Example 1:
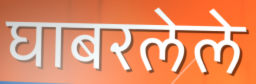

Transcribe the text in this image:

घाबरलेले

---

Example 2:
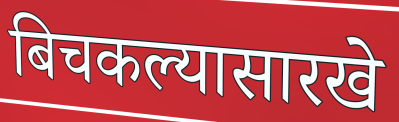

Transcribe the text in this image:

बिचकल्यासारखे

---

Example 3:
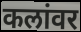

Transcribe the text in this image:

कलांवर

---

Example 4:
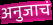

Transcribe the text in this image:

अनुजाचं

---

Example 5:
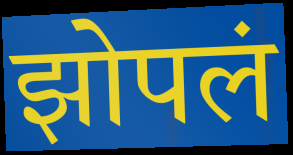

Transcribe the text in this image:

झोपलं